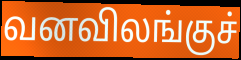
வனவிலங்குச்